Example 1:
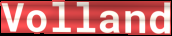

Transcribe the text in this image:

Volland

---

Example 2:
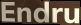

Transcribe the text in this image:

Endru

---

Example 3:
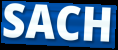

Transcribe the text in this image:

SACH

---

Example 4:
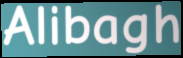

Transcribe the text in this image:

Alibagh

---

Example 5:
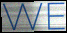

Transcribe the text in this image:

WE